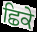
ਛਿਕੇ